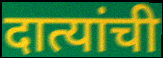
दात्यांची